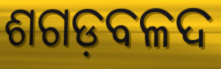
ଶଗଡ଼ବଳଦ